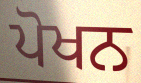
ਪੋਖਨ